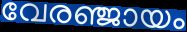
വേരഞ്ജായം